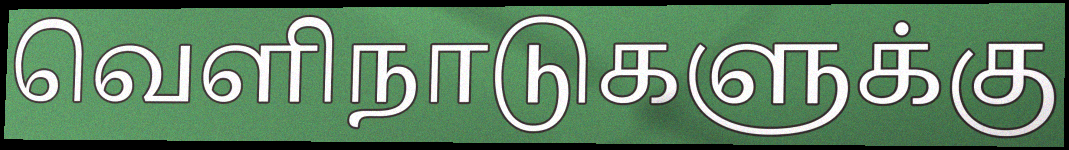
வெளிநாடுகளுக்கு